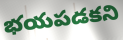
భయపడకని